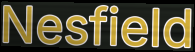
Nesfield